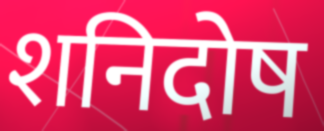
शनिदोष